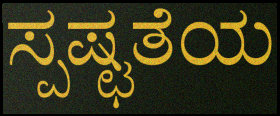
ಸ್ಪಷ್ಟತೆಯ